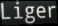
Liger